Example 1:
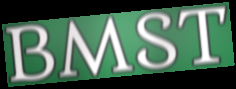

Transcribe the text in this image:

BMST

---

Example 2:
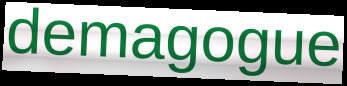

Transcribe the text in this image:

demagogue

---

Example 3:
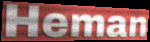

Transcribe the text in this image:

Heman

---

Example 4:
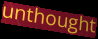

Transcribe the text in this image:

unthought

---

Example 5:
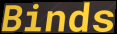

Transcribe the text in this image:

Binds